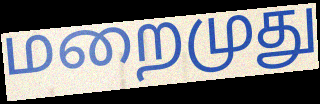
மறைமுது